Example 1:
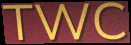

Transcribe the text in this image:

TWC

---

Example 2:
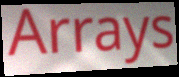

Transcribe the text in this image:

Arrays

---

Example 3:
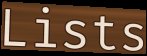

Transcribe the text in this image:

Lists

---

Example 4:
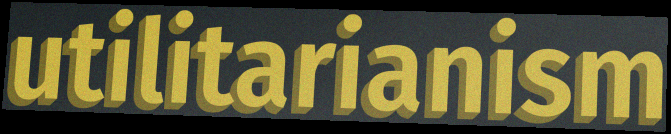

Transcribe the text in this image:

utilitarianism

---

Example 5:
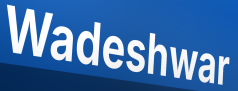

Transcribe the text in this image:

Wadeshwar